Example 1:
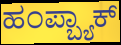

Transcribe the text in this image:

ಹಂಪ್ಬ್ಯಾಕ್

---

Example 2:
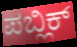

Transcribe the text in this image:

ಪಬ್ಲಿಕ್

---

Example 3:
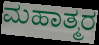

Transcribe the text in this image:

ಮಹಾತ್ಮರ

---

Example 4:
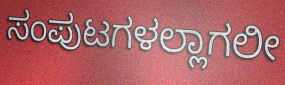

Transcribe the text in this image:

ಸಂಪುಟಗಳಲ್ಲಾಗಲೀ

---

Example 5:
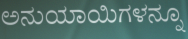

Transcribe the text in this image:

ಅನುಯಾಯಿಗಳನ್ನೂ